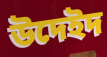
উদেইদ